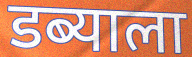
डब्याला